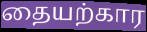
தையற்கார